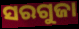
ସରଗୁଜା